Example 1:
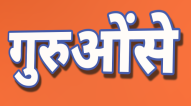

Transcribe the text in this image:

गुरुओंसे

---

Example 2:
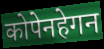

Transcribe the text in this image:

कोपेनहेगन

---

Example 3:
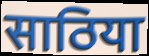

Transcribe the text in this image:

साठिया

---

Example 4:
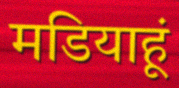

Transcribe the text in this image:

मडियाहूं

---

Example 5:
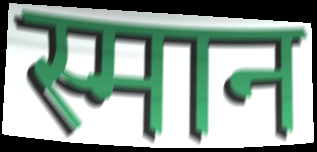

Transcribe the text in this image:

स्मान